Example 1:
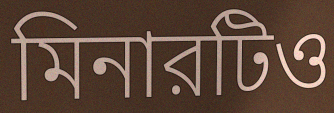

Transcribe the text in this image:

মিনারটিও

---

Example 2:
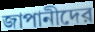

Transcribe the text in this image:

জাপানীদের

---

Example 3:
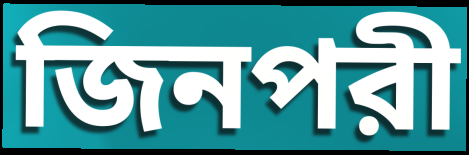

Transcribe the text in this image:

জিনপরী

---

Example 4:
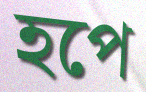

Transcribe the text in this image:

হপে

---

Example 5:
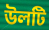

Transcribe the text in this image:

উলটি